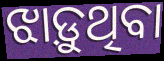
ଝାଡ଼ୁଥିବା